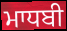
ਮਾਧਬੀ